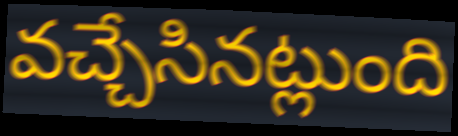
వచ్చేసినట్లుంది